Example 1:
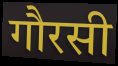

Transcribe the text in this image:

गौरसी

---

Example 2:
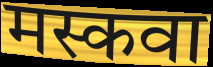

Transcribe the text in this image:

मस्कवा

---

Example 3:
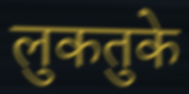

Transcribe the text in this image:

लुकतुके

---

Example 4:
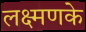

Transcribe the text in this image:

लक्ष्मणके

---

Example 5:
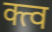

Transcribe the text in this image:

क्त्व